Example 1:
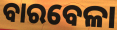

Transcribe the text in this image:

ବାରବେଳା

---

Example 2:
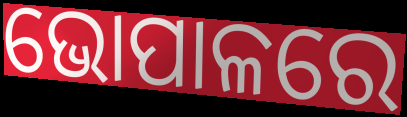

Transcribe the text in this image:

ଭୋପାଳରେ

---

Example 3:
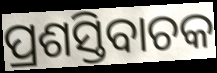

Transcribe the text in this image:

ପ୍ରଶସ୍ତିବାଚକ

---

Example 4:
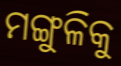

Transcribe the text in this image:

ମଙ୍ଗୁଳିକୁ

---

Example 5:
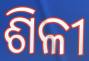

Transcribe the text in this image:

ଶିଳୀ